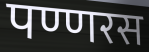
पण्णरस